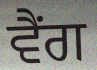
ਵੈਂਗ